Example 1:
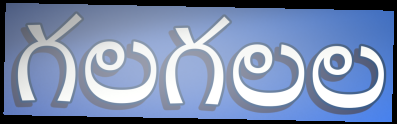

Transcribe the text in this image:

గలగలల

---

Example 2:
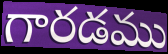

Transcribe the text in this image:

గారడము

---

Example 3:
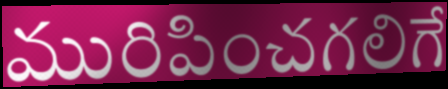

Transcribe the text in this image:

మురిపించగలిగే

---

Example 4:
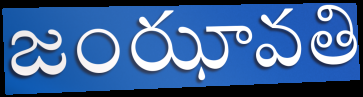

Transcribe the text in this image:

జంఝావతి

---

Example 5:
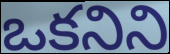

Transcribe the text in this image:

ఒకనిని